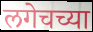
लगेचच्या